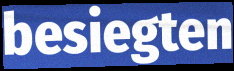
besiegten